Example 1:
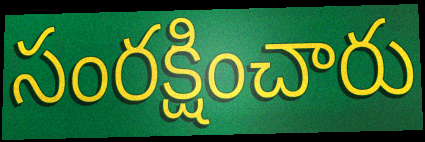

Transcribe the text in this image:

సంరక్షించారు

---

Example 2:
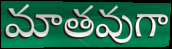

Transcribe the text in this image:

మాతవుగా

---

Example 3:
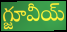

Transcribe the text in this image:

గ్జూవీయ్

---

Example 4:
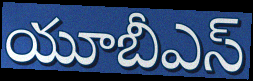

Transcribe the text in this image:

యూబీఎస్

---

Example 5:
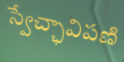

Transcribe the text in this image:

స్వేచ్ఛావిపణి